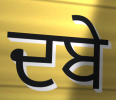
ਦਬੇ